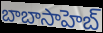
బాబాసాహెబ్